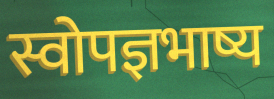
स्वोपज्ञभाष्य